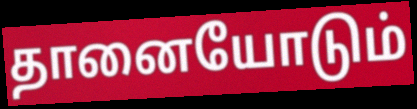
தானையோடும்